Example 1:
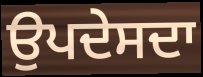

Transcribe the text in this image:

ਉਪਦੇਸਦਾ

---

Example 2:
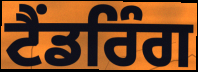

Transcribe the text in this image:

ਟੈਂਡਰਿੰਗ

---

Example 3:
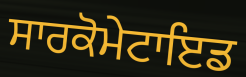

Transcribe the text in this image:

ਸਾਰਕੋਮੇਟਾਇਡ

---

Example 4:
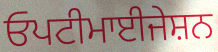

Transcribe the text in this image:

ਓਪਟੀਮਾਈਜੇਸ਼ਨ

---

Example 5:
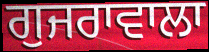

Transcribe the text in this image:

ਗੁਜਰਾਵਾਲਾ